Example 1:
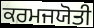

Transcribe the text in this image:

ਕਰਮਜਯੋਤੀ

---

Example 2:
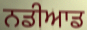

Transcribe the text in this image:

ਨਡੀਆਡ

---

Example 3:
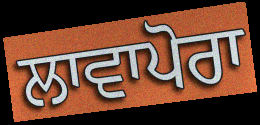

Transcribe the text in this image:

ਲਾਵਾਪੋਰਾ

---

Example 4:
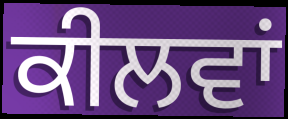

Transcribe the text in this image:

ਕੀਲਵਾਂ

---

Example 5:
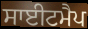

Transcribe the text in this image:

ਸਾਈਟਮੈਪ